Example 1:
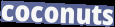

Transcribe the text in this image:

coconuts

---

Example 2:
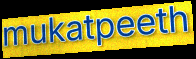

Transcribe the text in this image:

mukatpeeth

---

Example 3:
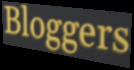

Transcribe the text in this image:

Bloggers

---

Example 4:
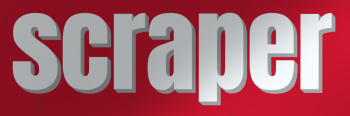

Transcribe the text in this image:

scraper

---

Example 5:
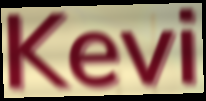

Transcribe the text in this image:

Kevi